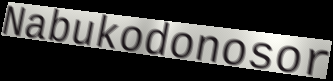
Nabukodonosor